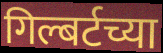
गिल्बर्टच्या